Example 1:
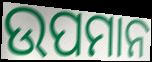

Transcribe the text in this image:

ଉପମାନ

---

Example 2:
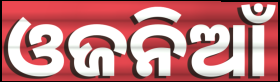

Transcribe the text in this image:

ଓଜନିଆଁ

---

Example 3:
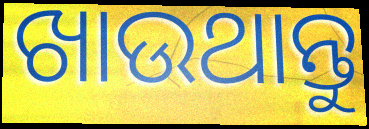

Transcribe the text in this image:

ଖାଉଥାନ୍ତୁ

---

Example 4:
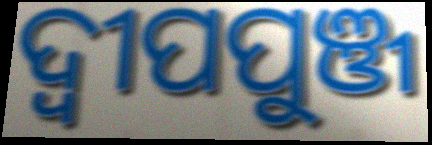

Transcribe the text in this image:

ଦ୍ୱୀପପୁଞ୍ଜ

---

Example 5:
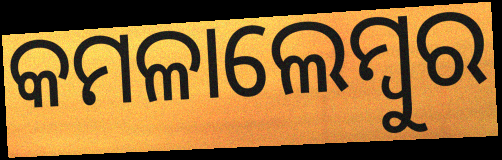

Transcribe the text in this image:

କମଳାଲେମ୍ବୁର